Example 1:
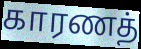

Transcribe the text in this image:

காரணத்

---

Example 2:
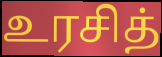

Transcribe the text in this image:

உரசித்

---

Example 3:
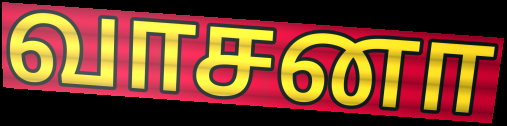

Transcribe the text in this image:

வாசனா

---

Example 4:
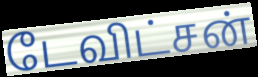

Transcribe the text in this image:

டேவிட்சன்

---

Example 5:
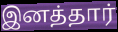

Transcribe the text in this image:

இனத்தார்